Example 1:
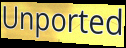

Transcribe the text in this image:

Unported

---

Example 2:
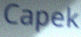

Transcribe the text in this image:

Capek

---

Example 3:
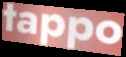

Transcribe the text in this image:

tappo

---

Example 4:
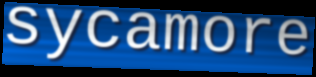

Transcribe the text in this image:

sycamore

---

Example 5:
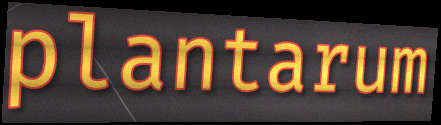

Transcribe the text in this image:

plantarum